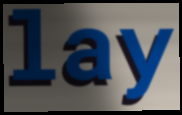
lay